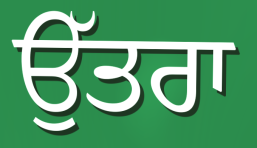
ਉੱਤਰਾ